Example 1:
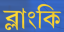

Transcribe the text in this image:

ব্লাংকি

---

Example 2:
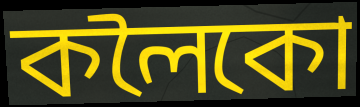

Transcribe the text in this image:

কলৈকো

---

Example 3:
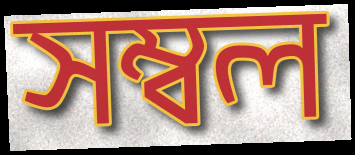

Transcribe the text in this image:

সম্বল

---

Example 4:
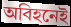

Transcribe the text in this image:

অবিহনেই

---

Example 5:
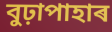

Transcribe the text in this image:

বুঢ়াপাহাৰ